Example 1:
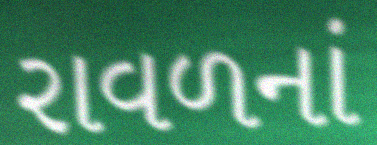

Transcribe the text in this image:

રાવળનાં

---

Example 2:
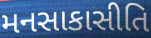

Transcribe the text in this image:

મનસાકાસીતિ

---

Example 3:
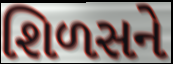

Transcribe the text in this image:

શિળસને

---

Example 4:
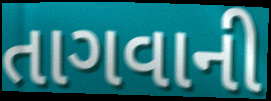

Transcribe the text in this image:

તાગવાની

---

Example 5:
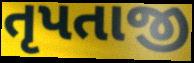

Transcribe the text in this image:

તૃપતાજી